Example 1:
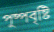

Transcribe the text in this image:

পুষ্পবৃষ্টি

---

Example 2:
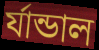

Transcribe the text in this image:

র্যান্ডাল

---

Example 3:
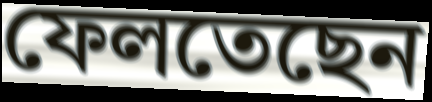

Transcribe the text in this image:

ফেলতেছেন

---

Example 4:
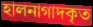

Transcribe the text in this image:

হালনাগাদকৃত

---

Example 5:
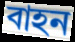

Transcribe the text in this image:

বাহন